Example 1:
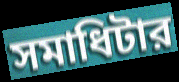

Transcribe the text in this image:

সমাধিটার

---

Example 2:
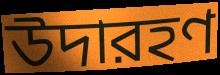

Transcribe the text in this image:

উদারহণ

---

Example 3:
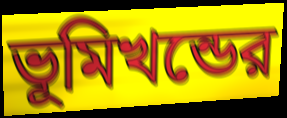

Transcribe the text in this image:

ভূমিখন্ডের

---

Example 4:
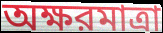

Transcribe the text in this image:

অক্ষরমাত্রা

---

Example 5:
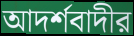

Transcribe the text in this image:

আদর্শবাদীর